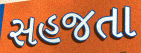
સહજતા